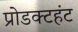
प्रोडक्टहंट